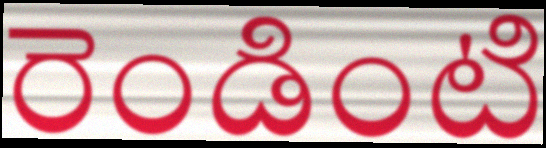
రెండింటి